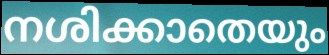
നശിക്കാതെയും